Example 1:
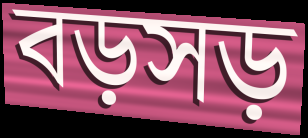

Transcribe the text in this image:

বড়সড়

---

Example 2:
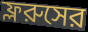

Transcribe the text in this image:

ফ্লরুসের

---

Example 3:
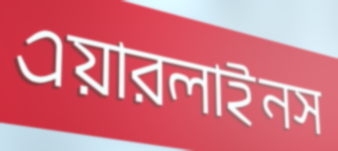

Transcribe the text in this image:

এয়ারলাইনস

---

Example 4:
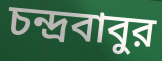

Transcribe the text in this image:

চন্দ্রবাবুর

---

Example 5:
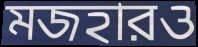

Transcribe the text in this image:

মজহারও